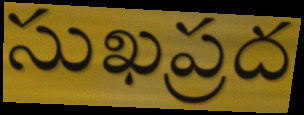
సుఖప్రద